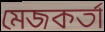
মেজকর্তা